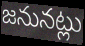
జనునట్లు